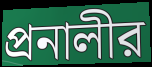
প্রনালীর